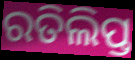
ରତିଲିପ୍ତ